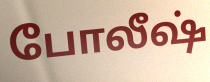
போலீஷ்